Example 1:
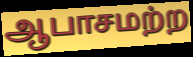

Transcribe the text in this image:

ஆபாசமற்ற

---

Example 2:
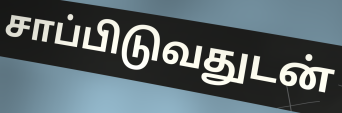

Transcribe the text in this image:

சாப்பிடுவதுடன்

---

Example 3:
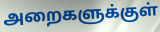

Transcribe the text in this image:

அறைகளுக்குள்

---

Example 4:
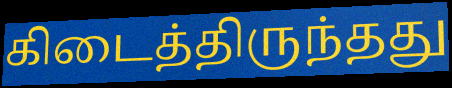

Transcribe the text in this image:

கிடைத்திருந்தது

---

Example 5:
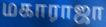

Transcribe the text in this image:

மகாராஜா